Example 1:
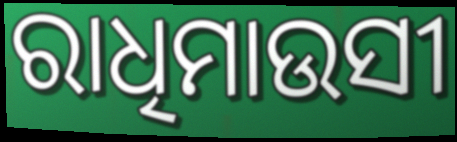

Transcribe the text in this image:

ରାଧିମାଉସୀ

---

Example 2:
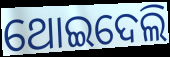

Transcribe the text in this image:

ଥୋଇଦେଲି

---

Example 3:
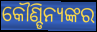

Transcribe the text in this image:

କୌଣ୍ଡିନ୍ୟଙ୍କର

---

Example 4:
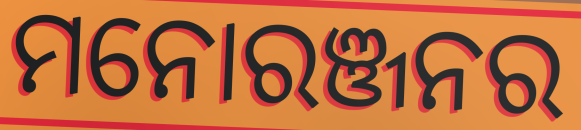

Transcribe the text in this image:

ମନୋରଞ୍ଜନର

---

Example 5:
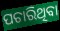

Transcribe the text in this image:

ପଚାରିଥିବା